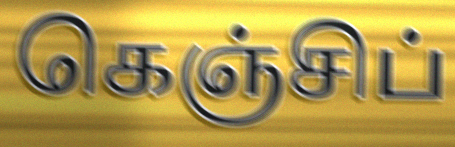
கெஞ்சிப்